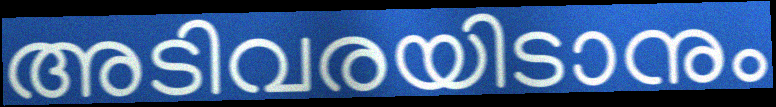
അടിവരയിടാനും